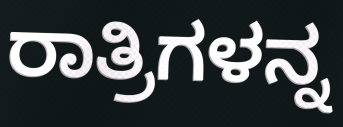
ರಾತ್ರಿಗಳನ್ನ